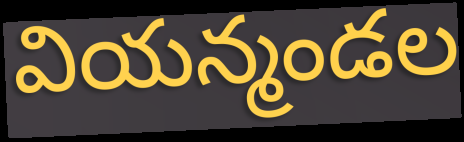
వియన్మండల